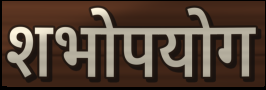
शभोपयोग